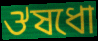
ঔষধো